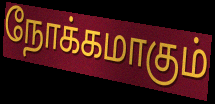
நோக்கமாகும்